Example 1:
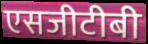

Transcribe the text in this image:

एसजीटीबी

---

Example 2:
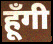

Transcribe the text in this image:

हूँगी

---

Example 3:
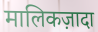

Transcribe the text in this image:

मालिकज़ादा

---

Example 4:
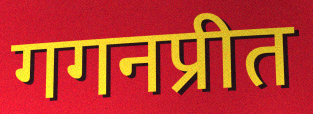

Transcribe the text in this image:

गगनप्रीत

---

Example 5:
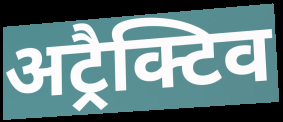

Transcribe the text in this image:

अट्रैक्टिव